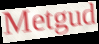
Metgud